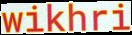
wikhri